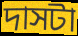
দাসটা